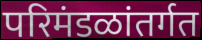
परिमंडळांतर्गत